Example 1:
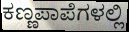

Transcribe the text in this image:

ಕಣ್ಣಪಾಪೆಗಳಲ್ಲಿ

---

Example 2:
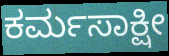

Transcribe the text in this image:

ಕರ್ಮಸಾಕ್ಷೀ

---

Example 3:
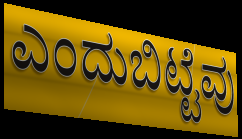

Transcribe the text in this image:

ಎಂದುಬಿಟ್ಟೆವು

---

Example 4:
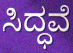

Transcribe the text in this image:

ಸಿದ್ಧವೆ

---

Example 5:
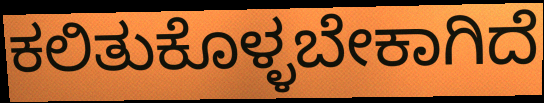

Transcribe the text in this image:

ಕಲಿತುಕೊಳ್ಳಬೇಕಾಗಿದೆ